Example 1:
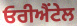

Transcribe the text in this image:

ਓਰੀਐਂਟੇਲ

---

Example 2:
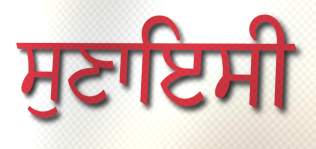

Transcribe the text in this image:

ਸੁਣਾਇਸੀ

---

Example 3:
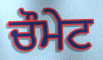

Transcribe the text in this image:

ਚੌਮੇਟ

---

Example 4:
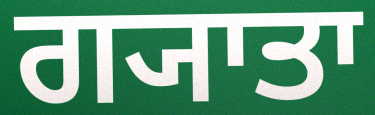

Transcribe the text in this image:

ਗ੍ਯਾਤਾ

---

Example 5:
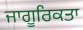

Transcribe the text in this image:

ਜਾਗੂਰਿਕਤਾ